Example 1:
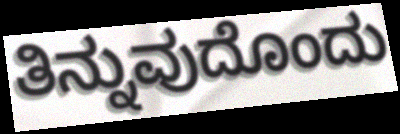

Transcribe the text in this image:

ತಿನ್ನುವುದೊಂದು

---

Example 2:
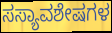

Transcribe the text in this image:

ಸಸ್ಯಾವಶೇಷಗಳ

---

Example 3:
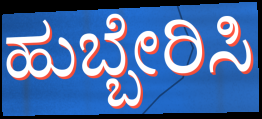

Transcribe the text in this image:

ಹುಬ್ಬೇರಿಸಿ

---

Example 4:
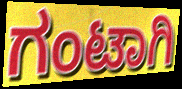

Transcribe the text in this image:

ಗಂಟಾಗಿ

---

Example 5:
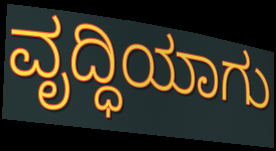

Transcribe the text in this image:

ವೃದ್ಧಿಯಾಗು